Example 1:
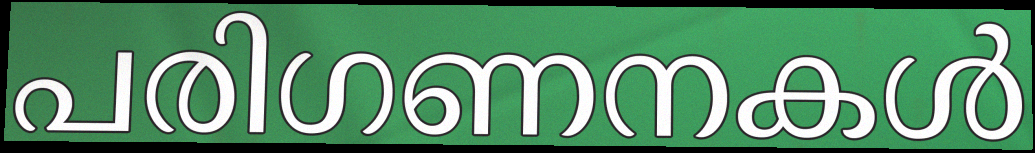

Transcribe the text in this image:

പരിഗണനകൾ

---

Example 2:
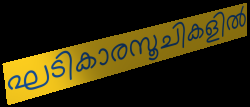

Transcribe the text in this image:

ഘടികാരസൂചികളിൽ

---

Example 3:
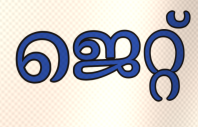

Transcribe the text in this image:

ജെറ്റ്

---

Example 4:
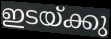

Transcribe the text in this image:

ഇടയ്ക്കു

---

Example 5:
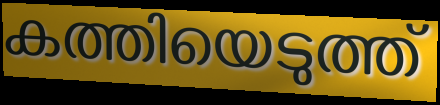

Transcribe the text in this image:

കത്തിയെടുത്ത്